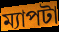
ম্যাপটা